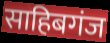
साहिबगंज